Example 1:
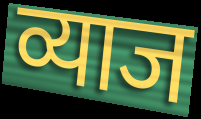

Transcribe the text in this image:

व्याज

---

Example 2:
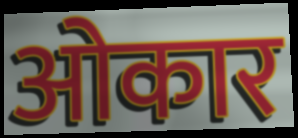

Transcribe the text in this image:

ओकार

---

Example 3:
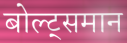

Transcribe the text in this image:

बोल्ट्समान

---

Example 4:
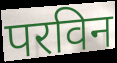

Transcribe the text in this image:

परविन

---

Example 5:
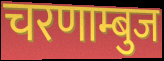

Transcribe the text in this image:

चरणाम्बुज